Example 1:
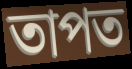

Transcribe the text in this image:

তাপত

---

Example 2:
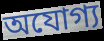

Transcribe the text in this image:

অযোগ্য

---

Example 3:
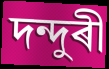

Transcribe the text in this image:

দন্দুৰী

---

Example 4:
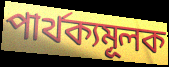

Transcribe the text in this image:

পাৰ্থক্যমূলক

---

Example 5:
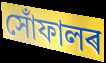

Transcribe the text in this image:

সোঁফালৰ